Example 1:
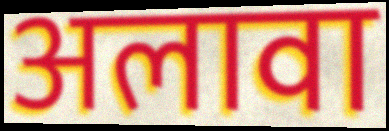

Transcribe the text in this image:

अलावा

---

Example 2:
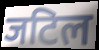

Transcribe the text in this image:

जटिल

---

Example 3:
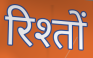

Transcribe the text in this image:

रिश्तों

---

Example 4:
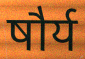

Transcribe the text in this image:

षौर्य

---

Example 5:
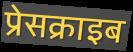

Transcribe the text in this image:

प्रेसक्राइब